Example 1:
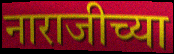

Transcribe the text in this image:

नाराजीच्या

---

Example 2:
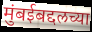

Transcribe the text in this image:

मुंबईबद्दलच्या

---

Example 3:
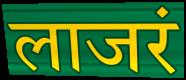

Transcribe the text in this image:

लाजरं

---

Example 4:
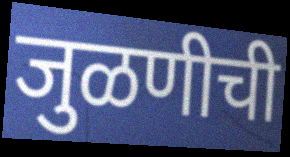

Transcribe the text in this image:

जुळणीची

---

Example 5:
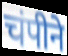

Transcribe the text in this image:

चंपीने